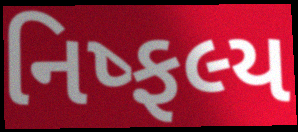
નિષ્ફલ્ય